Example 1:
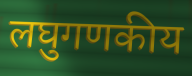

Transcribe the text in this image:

लघुगणकीय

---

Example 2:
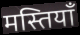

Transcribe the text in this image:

मस्तियाँ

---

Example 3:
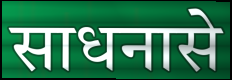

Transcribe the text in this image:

साधनासे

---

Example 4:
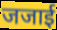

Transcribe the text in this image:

जजाई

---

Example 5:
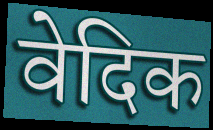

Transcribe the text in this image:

वेदिक